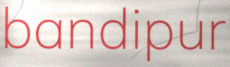
bandipur